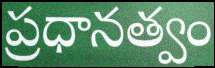
ప్రధానత్వం